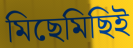
মিছেমিছিই